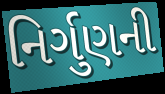
નિર્ગુણની